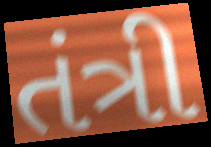
તંત્રી